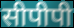
सीपीपी